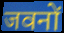
जवनों